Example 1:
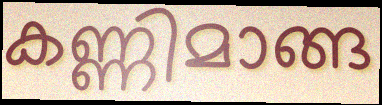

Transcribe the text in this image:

കണ്ണിമാങ്ങ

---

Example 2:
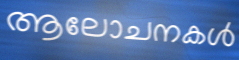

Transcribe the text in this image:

ആലോചനകൾ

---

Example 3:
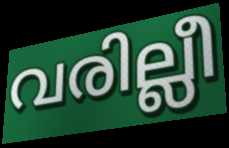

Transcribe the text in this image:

വരില്ലീ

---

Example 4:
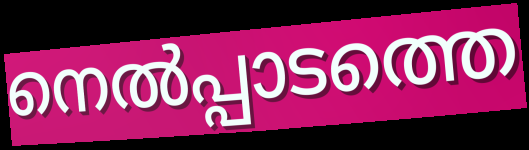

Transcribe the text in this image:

നെൽപ്പാടത്തെ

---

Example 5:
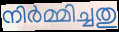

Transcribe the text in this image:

നിർമ്മിച്ചതു